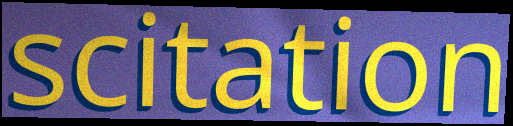
scitation